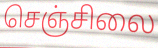
செஞ்சிலை